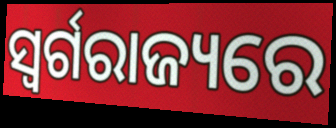
ସ୍ୱର୍ଗରାଜ୍ୟରେ